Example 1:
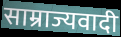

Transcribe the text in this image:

साम्राज्यवादी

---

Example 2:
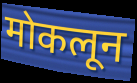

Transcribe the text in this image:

मोकलून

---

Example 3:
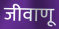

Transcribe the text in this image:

जीवाणू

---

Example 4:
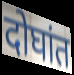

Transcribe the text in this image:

दोघांत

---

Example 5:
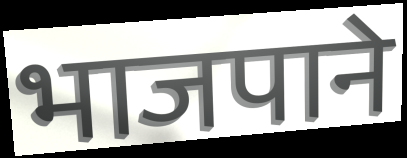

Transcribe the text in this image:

भाजपाने